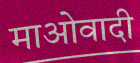
माओवादी